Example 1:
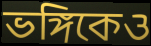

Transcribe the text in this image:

ভঙ্গিকেও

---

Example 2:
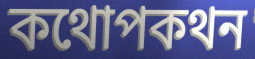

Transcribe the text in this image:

কথোপকথন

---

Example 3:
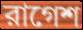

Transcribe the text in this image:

রাগেশ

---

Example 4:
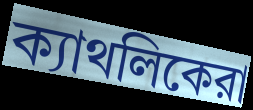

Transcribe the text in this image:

ক্যাথলিকেরা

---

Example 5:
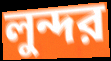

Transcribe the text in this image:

লুন্দর